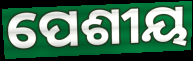
ପେଶୀୟ